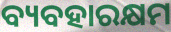
ବ୍ୟବହାରକ୍ଷମ